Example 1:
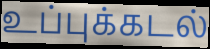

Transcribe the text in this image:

உப்புக்கடல்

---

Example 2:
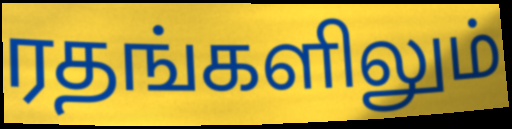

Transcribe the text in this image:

ரதங்களிலும்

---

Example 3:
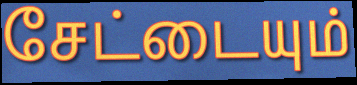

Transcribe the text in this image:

சேட்டையும்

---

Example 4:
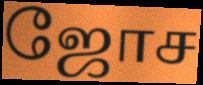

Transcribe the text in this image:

ஜோச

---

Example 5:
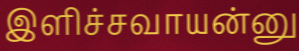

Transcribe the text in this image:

இளிச்சவாயன்னு